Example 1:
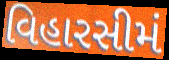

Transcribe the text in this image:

વિહારસીમં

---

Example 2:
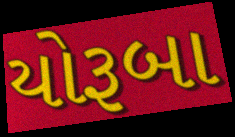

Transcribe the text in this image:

યોરૂબા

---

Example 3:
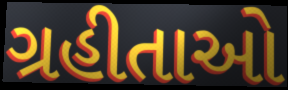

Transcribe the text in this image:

ગ્રહીતાઓ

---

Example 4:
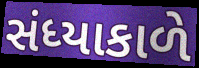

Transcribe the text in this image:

સંધ્યાકાળે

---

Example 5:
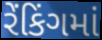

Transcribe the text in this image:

રેંકિંગમાં